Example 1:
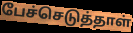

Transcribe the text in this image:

பேச்செடுத்தாள்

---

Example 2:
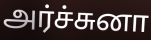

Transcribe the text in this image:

அர்ச்சுனா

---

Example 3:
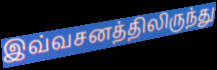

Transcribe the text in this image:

இவ்வசனத்திலிருந்து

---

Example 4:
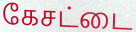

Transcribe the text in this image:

கேசட்டை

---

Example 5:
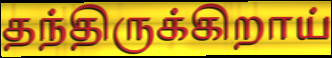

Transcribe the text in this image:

தந்திருக்கிறாய்